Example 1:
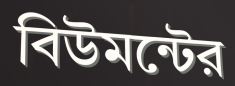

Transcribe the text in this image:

বিউমন্টের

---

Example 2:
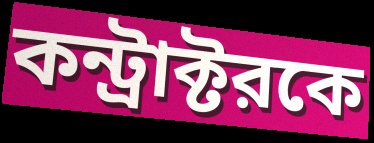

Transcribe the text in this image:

কন্ট্রাক্টরকে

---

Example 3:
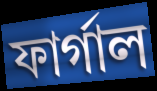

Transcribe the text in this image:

ফার্গাল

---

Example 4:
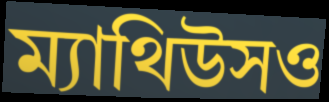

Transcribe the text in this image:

ম্যাথিউসও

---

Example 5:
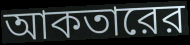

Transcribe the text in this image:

আকতারের